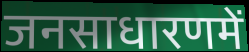
जनसाधारणमें